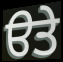
ੳਤੇ